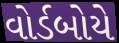
વોર્ડબોયે